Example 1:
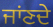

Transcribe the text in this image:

ਜਾਂਣਦੇ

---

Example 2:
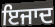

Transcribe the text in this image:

ਇਜਾਦ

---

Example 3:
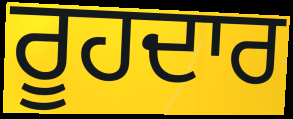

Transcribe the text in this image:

ਰੂਹਦਾਰ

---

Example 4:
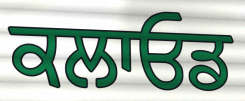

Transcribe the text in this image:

ਕਲਾਓਡ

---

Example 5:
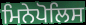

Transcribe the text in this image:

ਮਿਨੇਪੋਲਿਸ